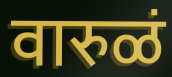
वारुळं